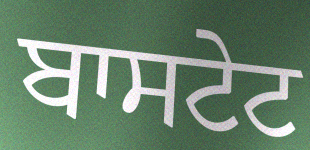
ਬਾਸਟੇਟ